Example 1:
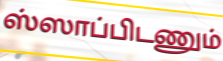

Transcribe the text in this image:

ஸ்ஸாப்பிடணும்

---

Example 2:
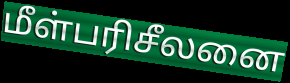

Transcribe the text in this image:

மீள்பரிசீலனை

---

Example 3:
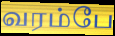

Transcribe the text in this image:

வரம்பே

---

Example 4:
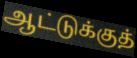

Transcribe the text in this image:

ஆட்டுக்குத்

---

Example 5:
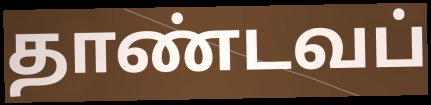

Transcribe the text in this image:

தாண்டவப்